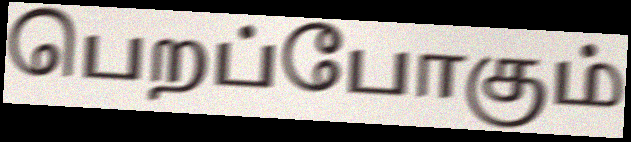
பெறப்போகும்